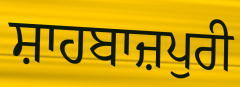
ਸ਼ਾਹਬਾਜ਼ਪੁਰੀ